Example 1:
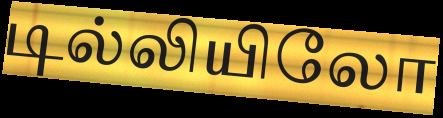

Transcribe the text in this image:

டில்லியிலோ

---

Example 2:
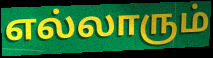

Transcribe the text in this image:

எல்லாரும்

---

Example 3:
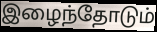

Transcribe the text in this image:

இழைந்தோடும்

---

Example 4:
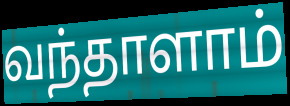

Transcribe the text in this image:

வந்தாளாம்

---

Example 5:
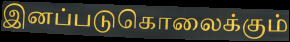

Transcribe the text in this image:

இனப்படுகொலைக்கும்